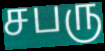
சபரு